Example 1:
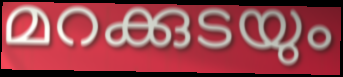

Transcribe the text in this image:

മറക്കുടയും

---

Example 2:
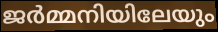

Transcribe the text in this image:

ജർമ്മനിയിലേയും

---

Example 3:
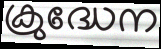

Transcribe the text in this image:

ക്രുദ്ധേന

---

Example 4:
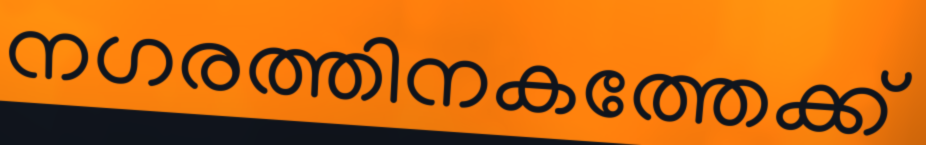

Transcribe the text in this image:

നഗരത്തിനകത്തേക്ക്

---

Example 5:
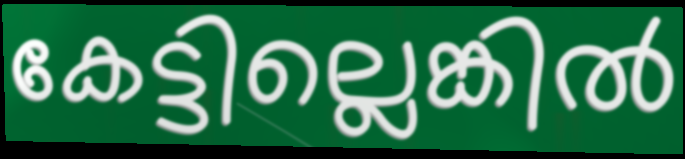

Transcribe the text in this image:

കേട്ടില്ലെങ്കിൽ